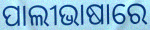
ପାଲୀଭାଷାରେ